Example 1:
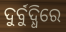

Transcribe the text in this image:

ଦୁର୍ବୁଦ୍ଧିରେ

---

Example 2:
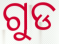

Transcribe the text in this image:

ଗୁଡ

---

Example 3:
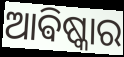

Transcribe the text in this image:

ଆଵିଷ୍କାର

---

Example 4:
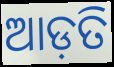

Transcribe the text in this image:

ଆଡ଼ତି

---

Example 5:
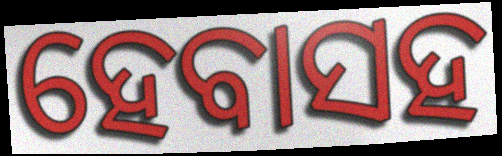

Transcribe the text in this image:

ହେବାସହ